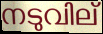
നടുവില്